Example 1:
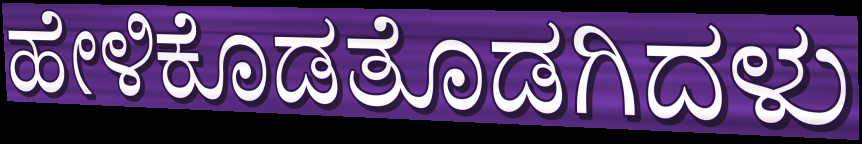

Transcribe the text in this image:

ಹೇಳಿಕೊಡತೊಡಗಿದಳು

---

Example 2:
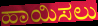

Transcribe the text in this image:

ಹಾಯಿಸಲು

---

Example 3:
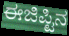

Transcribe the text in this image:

ಈಜಿಪ್ಟಿನ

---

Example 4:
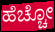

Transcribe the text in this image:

ಹೆಚ್ಚೋ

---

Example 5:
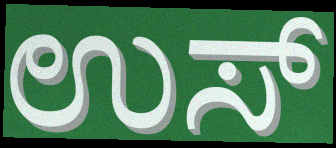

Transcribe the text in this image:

ಉಸ್